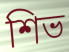
শিভ